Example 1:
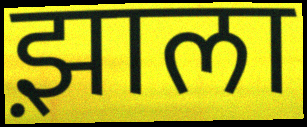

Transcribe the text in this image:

झ़ाला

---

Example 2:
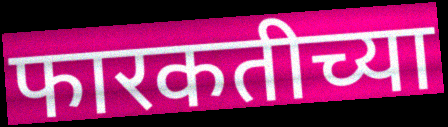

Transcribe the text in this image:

फारकतीच्या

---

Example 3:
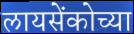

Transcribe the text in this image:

लायसेंकोच्या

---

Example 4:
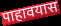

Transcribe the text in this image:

पाहावयास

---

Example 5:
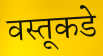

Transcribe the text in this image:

वस्तूकडे